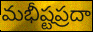
మభీష్టప్రదా